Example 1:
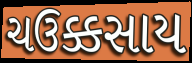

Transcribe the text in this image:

ચઉક્કસાય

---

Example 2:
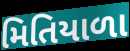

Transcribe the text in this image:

મિતિયાળા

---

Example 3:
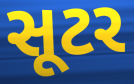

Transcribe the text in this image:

સૂટર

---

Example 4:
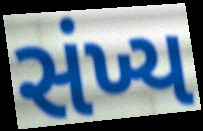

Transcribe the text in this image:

સંખ્ય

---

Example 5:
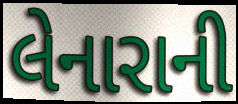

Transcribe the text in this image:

લેનારાની